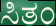
ಸಿತಂ